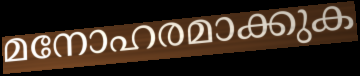
മനോഹരമാക്കുക